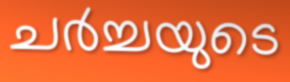
ചർച്ചയുടെ